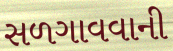
સળગાવવાની